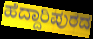
ಹೆದ್ದಾರಿಪುರದ